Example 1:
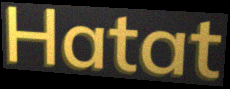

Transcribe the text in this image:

Hatat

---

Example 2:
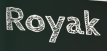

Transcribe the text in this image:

Royak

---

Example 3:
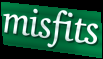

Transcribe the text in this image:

misfits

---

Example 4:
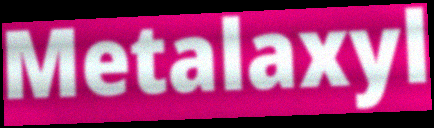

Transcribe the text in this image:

Metalaxyl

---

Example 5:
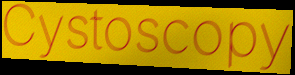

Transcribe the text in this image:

Cystoscopy